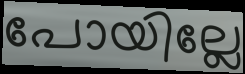
പോയില്ലേ